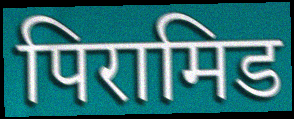
पिरामिड